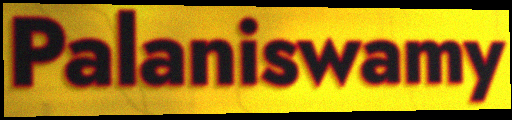
Palaniswamy